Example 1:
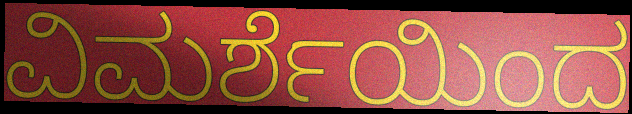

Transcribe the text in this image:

ವಿಮರ್ಶೆಯಿಂದ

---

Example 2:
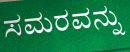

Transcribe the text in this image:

ಸಮರವನ್ನು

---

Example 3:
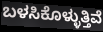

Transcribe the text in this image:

ಬಳಸಿಕೊಳ್ಳುತ್ತಿವೆ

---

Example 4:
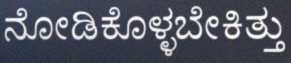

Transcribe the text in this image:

ನೋಡಿಕೊಳ್ಳಬೇಕಿತ್ತು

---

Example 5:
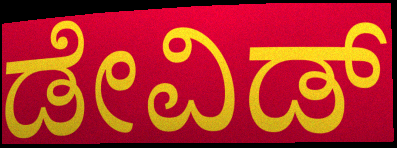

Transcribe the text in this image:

ಡೇವಿಡ್